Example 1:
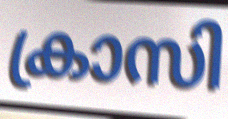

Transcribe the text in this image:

ക്രാസി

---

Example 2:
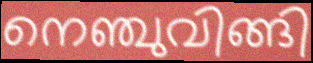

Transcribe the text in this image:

നെഞ്ചുവിങ്ങി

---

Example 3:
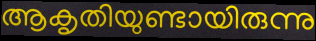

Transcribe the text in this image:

ആകൃതിയുണ്ടായിരുന്നു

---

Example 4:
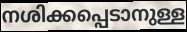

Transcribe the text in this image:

നശിക്കപ്പെടാനുള്ള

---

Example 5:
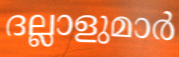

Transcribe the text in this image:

ദല്ലാളുമാർ